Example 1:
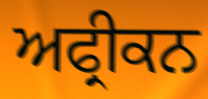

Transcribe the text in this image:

ਅਫ੍ਰੀਕਨ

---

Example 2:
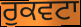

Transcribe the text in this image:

ਰੁਕਵਟਾ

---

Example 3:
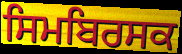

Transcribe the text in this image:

ਸਿਮਬਿਰਸਕ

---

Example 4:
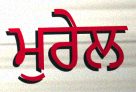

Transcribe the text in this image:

ਮੁਰੇਲ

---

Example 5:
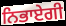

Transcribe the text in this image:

ਨਿਭਾਏਗੀ